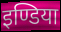
इण्डिया